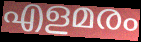
എളമരം